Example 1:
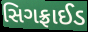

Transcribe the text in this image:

સિગફ્રાઈડ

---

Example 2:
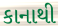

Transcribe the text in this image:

કાનાથી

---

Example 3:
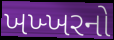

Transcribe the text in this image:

ખખ્ખરનો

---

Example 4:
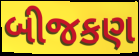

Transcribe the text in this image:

બીજકણ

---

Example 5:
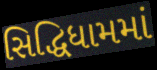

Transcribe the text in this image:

સિદ્ધિધામમાં